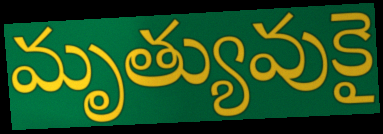
మృత్యువుకై